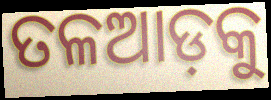
ତଳଆଡ଼କୁ